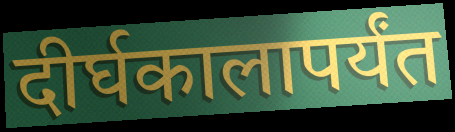
दीर्घकालापर्यंत